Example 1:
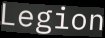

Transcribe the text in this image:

Legion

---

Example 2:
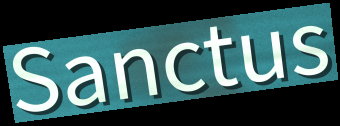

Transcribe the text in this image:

Sanctus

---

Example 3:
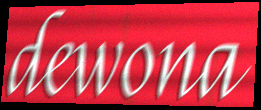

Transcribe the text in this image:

dewona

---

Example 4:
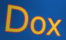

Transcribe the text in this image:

Dox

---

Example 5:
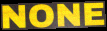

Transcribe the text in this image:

NONE